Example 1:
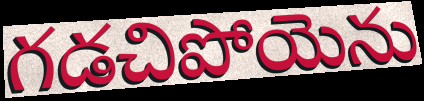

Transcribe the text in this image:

గడచిపోయెను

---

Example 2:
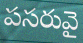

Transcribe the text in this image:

పసరువై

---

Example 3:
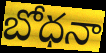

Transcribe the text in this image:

బోధనా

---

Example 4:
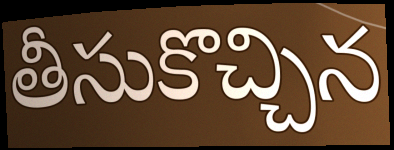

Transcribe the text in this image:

తీసుకొచ్చిన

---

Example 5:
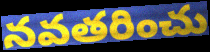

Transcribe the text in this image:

నవతరించు